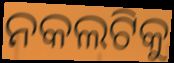
ନକଲଟିକୁ